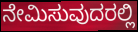
ನೇಮಿಸುವುದರಲ್ಲಿ